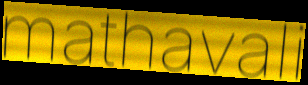
mathavali